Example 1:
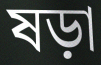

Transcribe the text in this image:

ষড়া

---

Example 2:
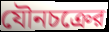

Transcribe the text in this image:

যৌনচক্রের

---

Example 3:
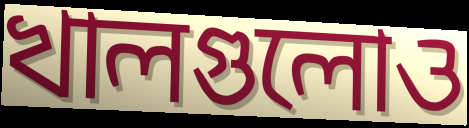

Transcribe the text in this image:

খালগুলোও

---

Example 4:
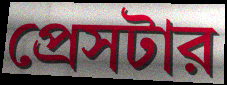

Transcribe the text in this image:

প্রেসটার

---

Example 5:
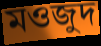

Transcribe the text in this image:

মওজুদ